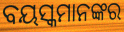
ବୟସ୍କମାନଙ୍କର